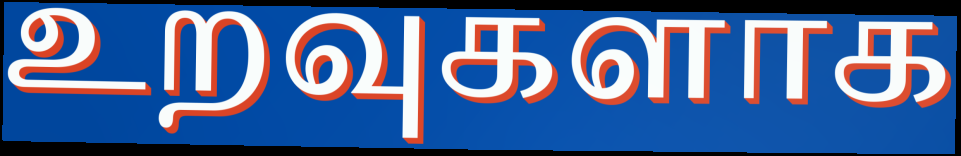
உறவுகளாக